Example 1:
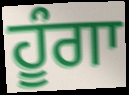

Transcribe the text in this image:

ਹੂੰਗਾ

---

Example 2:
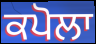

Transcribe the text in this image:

ਕਪੋਲਾ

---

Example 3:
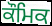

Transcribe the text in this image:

ਕੌਮਿਕ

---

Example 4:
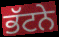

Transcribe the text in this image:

ਭੱਟਨੇ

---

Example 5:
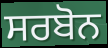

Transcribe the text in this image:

ਸਰਬੋਨ